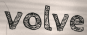
volve